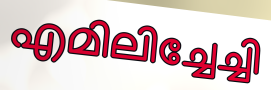
എമിലിച്ചേച്ചി